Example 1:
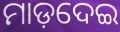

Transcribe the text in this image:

ମାଡ଼ଦେଇ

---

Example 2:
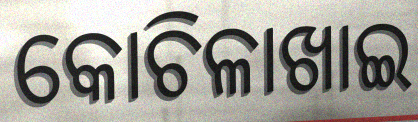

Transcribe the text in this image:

କୋଚିଳାଖାଇ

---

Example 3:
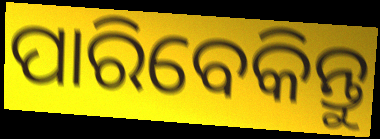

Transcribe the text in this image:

ପାରିବେକିନ୍ତୁ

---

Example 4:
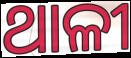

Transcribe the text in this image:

ଥାଳୀ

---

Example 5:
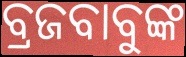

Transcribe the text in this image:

ବ୍ରଜବାବୁଙ୍କ